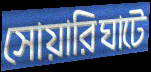
সোয়ারিঘাটে